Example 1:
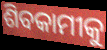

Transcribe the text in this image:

ଶିବକାମୀକୁ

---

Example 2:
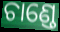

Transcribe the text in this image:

ଚାଣ୍ଡେ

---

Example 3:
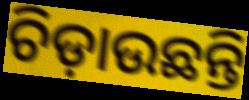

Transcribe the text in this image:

ଚିଡ଼ାଉଛନ୍ତି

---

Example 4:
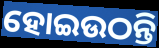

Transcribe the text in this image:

ହୋଇଉଠନ୍ତି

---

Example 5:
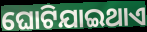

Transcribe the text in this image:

ଘୋଟିଯାଇଥାଏ